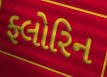
ફ્લોરિન